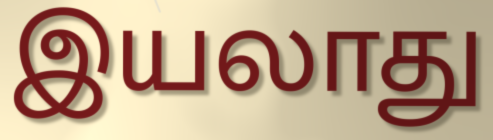
இயலாது